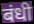
बंधी